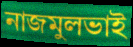
নাজমুলভাই